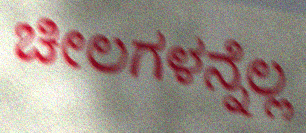
ಚೀಲಗಳನ್ನೆಲ್ಲ